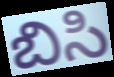
బిసి